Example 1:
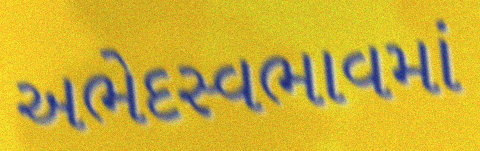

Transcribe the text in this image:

અભેદસ્વભાવમાં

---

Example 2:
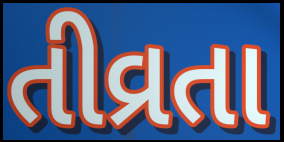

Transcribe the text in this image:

તીવ્રતા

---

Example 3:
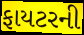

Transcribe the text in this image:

ફાયટરની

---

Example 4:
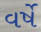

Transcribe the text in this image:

વર્ષે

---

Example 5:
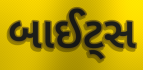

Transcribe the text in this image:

બાઈટ્સ